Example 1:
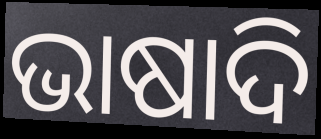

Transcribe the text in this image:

ଭାଷାଦି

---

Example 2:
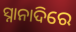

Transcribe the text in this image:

ସ୍ନାନାଦିରେ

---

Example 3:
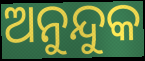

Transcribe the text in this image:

ଅନୁନ୍ଦୁକ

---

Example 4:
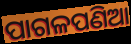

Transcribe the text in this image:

ପାଗଳପଣିଆ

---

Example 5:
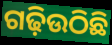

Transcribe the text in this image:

ଗଢ଼ିଉଠିଛି